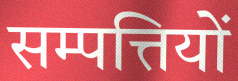
सम्‍पत्तियों